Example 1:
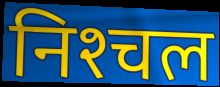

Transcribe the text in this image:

निश्चल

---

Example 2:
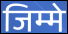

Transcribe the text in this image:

जिम्मे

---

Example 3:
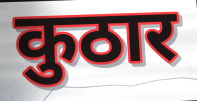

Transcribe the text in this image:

कुठार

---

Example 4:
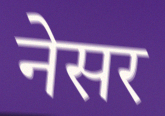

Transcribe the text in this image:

नेसर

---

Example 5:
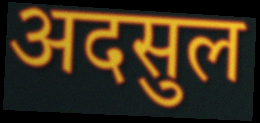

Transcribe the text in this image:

अदसुल